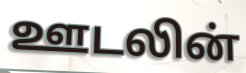
ஊடலின்